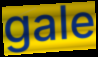
gale